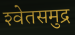
श्वेतसमुद्र